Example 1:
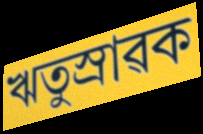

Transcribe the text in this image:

ঋতুস্ৰাৱক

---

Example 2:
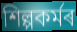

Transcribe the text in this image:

শিল্পকৰ্মৰ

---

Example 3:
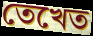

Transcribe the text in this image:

তেখেত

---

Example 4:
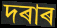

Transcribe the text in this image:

দৰাৰ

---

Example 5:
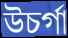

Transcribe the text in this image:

উচৰ্গা